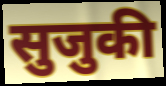
सुजुकी